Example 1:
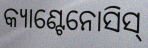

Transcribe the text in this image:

କ୍ୟାଣ୍ଟେନୋସିସ୍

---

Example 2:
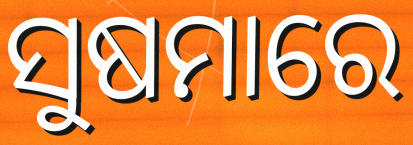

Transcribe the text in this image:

ସୁଷମାରେ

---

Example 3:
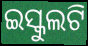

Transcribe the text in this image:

ଇସ୍କୁଲଟି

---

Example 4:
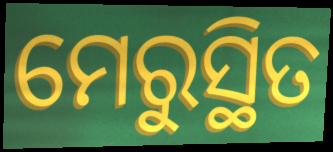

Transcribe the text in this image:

ମେରୁସ୍ଥିତ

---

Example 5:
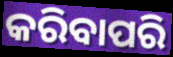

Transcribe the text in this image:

କରିବାପରି